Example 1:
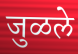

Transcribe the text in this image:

जुळले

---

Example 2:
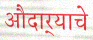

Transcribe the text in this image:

औदार्याचे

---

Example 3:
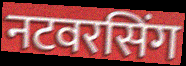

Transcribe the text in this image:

नटवरसिंग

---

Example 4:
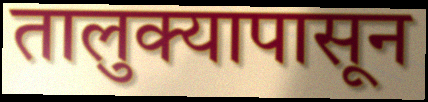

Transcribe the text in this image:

तालुक्यापासून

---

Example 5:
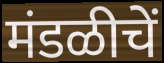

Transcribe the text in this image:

मंडळीचें